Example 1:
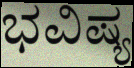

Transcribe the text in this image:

ಭವಿಷ್ಯ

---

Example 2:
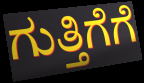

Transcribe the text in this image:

ಗುತ್ತಿಗೆಗೆ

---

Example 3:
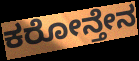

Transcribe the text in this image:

ಕರೋನ್ತೇನ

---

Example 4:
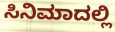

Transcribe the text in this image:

ಸಿನಿಮಾದಲ್ಲಿ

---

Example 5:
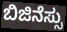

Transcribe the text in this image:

ಬಿಜಿನೆಸ್ಸು